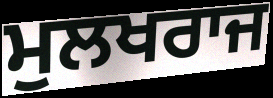
ਮੁਲਖਰਾਜ